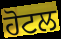
ਹੋਟਲ